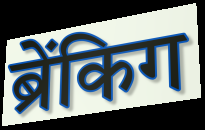
ब्रेंकिग